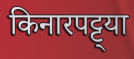
किनारपट्ट्या